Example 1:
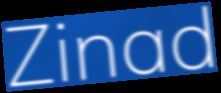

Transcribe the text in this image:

Zinad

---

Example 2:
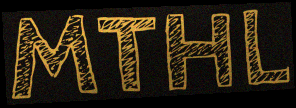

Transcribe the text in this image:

MTHL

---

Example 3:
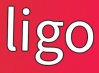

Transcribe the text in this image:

ligo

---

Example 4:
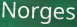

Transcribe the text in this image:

Norges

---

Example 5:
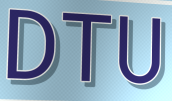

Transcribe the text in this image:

DTU